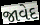
જાવેદ